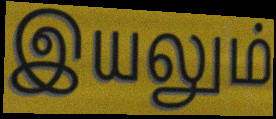
இயலும்